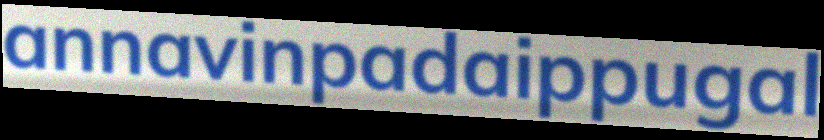
annavinpadaippugal